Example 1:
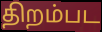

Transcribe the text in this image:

திறம்பட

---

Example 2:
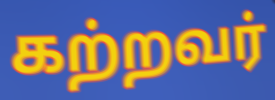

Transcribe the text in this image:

கற்றவர்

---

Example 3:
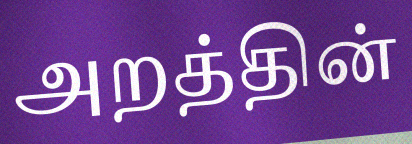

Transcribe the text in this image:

அறத்தின்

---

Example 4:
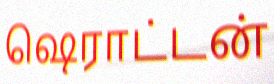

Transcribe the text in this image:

ஷெராட்டன்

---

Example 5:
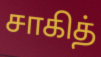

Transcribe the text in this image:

சாகித்